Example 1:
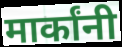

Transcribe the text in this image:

मार्कांनी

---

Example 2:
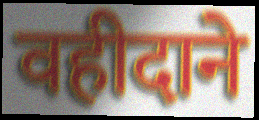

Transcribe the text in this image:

वहीदाने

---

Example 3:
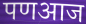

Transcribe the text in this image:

पणआज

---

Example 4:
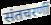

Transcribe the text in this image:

संतचरणीं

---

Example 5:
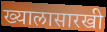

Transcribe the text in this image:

ख्यालासारखी